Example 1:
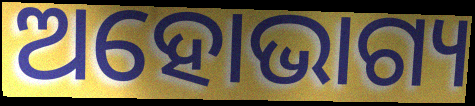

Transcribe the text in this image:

ଅହୋଭାଗ୍ୟ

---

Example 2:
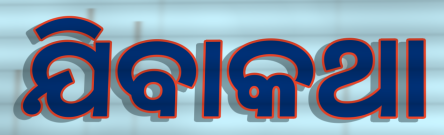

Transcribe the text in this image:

ଯିବାକଥା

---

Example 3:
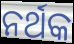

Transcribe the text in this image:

ନର୍ଥକ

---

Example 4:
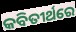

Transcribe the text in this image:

କବିତୀର୍ଥରେ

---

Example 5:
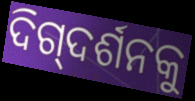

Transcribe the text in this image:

ଦିଗ୍‌ଦର୍ଶନକୁ